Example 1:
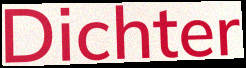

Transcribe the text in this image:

Dichter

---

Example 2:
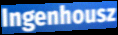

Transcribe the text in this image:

Ingenhousz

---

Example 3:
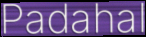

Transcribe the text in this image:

Padahal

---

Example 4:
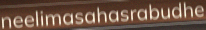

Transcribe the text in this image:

neelimasahasrabudhe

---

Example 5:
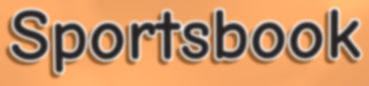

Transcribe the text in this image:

Sportsbook